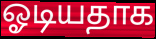
ஓடியதாக